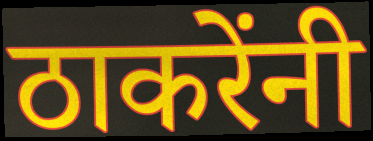
ठाकरेंनी